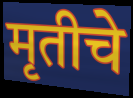
मृतीचे